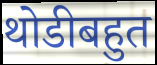
थोडीबहुत